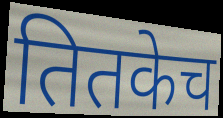
तितकेच